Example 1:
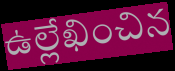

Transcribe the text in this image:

ఉల్లేఖించిన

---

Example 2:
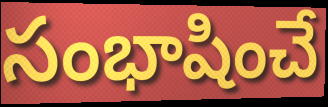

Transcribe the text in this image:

సంభాషించే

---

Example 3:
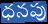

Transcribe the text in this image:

ధనపు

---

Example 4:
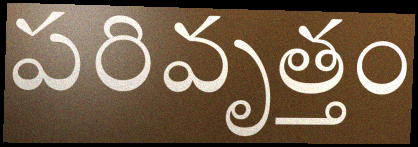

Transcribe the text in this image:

పరివృత్తం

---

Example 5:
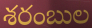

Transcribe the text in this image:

శరంబుల